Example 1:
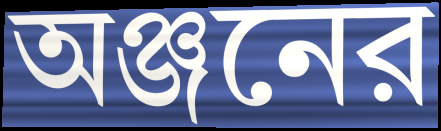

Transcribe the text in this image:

অঞ্জনের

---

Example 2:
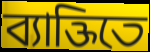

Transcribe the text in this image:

ব্যাক্তিতে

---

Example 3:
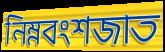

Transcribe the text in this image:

নিম্নবংশজাত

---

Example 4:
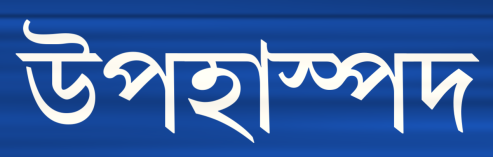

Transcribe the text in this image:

উপহাস্পদ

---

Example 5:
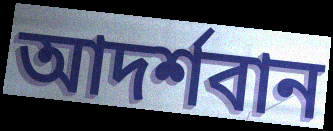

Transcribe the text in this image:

আদর্শবান